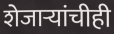
शेजाऱ्यांचीही